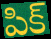
పిక్